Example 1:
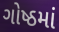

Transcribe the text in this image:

ગોષ્ઠમાં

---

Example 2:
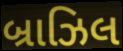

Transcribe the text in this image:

બ્રાઝિલ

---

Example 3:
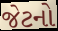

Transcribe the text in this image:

જેટનો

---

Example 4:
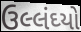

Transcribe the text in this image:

ઉલ્લંઘ્યો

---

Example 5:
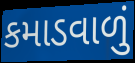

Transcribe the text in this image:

કમાડવાળું